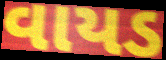
વાયડ